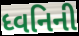
ધ્વનિની